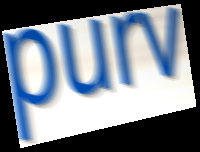
purv